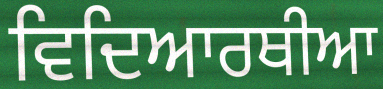
ਵਿਦਿਆਰਥੀਆ